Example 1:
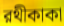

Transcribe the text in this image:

রথীকাকা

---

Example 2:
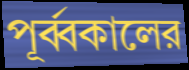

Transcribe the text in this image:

পূর্ব্বকালের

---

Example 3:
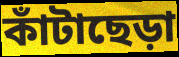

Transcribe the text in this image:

কাঁটাছেড়া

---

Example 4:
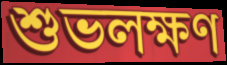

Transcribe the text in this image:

শুভলক্ষণ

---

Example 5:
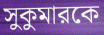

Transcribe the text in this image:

সুকুমারকে